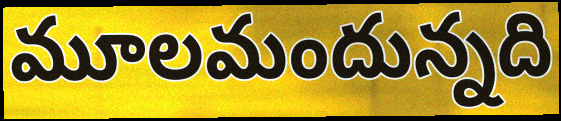
మూలమందున్నది